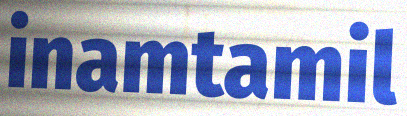
inamtamil